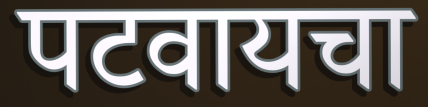
पटवायचा